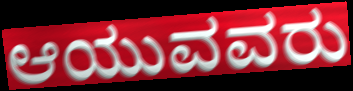
ಆಯುವವರು